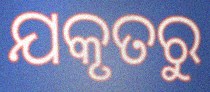
ଯକୃତରୁ